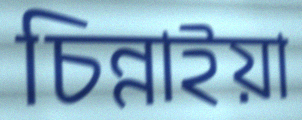
চিন্নাইয়া